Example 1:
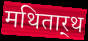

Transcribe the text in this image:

मथितार्थ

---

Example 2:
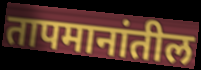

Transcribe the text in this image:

तापमानांतील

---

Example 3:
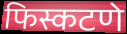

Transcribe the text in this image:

फिस्कटणे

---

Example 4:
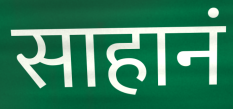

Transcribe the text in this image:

साहानं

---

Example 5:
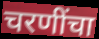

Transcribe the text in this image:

चरणींचा